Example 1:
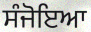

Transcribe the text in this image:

ਸੰਜੋਇਆ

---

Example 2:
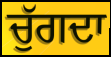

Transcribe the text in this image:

ਚੁੱਗਦਾ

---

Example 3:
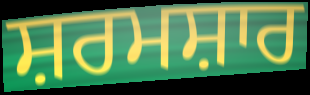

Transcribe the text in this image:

ਸ਼ਰਮਸ਼ਾਰ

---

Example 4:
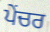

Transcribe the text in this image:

ਪੇਂਚਰ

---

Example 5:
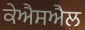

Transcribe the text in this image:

ਕੇਐਸਐਲ